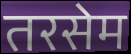
तरसेम